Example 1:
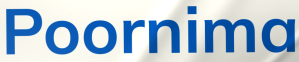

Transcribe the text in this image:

Poornima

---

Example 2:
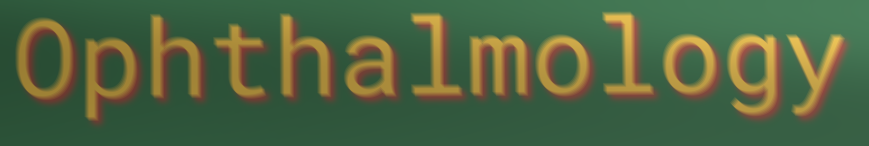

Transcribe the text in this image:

Ophthalmology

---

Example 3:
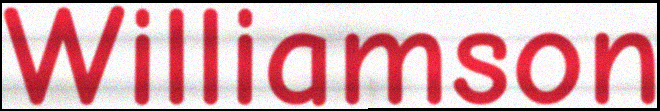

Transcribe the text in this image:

Williamson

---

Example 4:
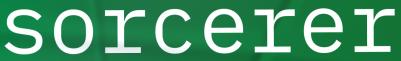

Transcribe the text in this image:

sorcerer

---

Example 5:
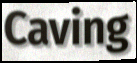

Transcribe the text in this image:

Caving